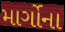
માર્ગોના